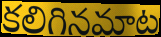
కలిగినమాట